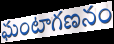
ఘంటాగణనం